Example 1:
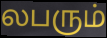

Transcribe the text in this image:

லபரும்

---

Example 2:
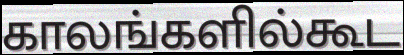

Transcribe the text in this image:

காலங்களில்கூட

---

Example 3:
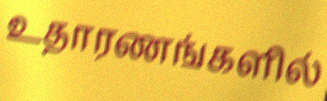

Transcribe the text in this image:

உதாரணங்களில்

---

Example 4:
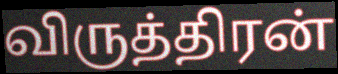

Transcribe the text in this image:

விருத்திரன்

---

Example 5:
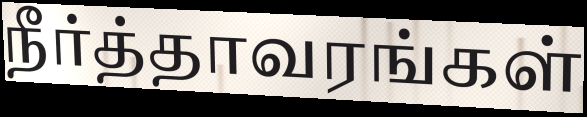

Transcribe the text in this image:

நீர்த்தாவரங்கள்